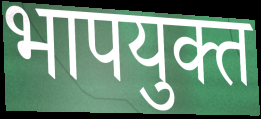
भापयुक्त